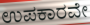
ಉಪಕಾರವೇ